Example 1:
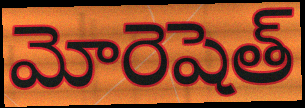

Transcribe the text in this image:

మోరెషెత్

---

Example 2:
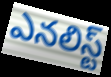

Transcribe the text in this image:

ఎనలిస్ట్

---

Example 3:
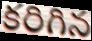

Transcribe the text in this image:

కరిగిన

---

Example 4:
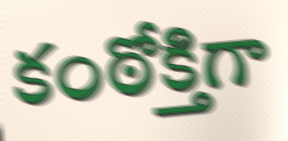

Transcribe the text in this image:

కంఠోక్తిగా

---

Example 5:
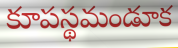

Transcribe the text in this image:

కూపస్థమండూక